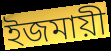
ইজমায়ী